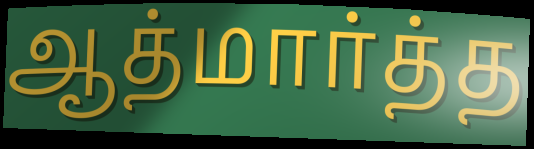
ஆத்மார்த்த